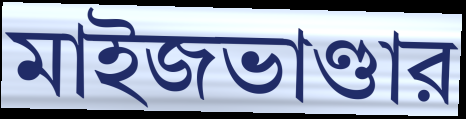
মাইজভাণ্ডার